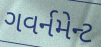
ગવર્નમેન્ટ